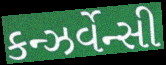
કન્ઝર્વેન્સી